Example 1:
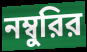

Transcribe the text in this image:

নম্বুরির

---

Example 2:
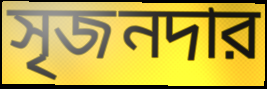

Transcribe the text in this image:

সৃজনদার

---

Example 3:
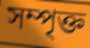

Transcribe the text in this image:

সম্পৃক্ত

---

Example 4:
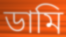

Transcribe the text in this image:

ডামি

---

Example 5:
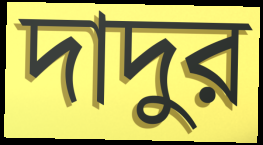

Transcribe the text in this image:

দাদুর